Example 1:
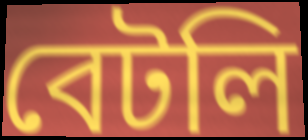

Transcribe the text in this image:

বেটলি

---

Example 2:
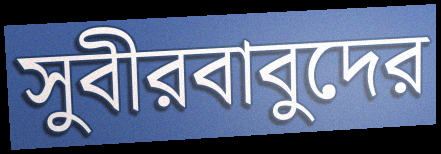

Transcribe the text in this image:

সুবীরবাবুদের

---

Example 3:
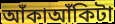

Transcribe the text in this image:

আঁকাআঁকিটা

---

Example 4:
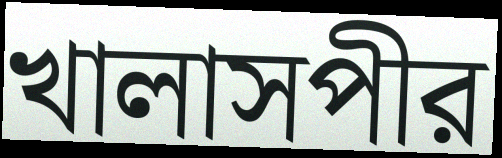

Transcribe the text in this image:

খালাসপীর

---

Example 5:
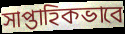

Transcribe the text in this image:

সাপ্তাহিকভাবে